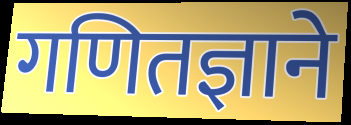
गणितज्ञाने